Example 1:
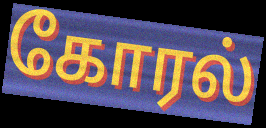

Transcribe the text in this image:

கோரல்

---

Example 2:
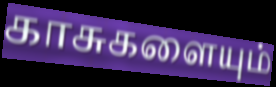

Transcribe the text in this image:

காசுகளையும்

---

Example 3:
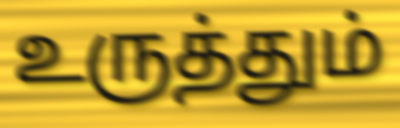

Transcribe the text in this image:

உருத்தும்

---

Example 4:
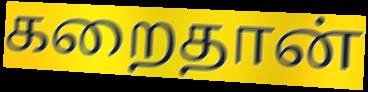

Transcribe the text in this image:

கறைதான்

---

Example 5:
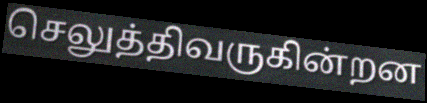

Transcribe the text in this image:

செலுத்திவருகின்றன